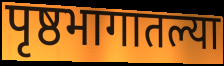
पृष्ठभागातल्या